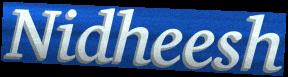
Nidheesh